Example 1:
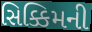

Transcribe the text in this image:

સિક્કિમની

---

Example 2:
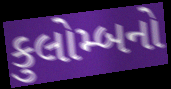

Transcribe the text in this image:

કુલોમ્બનો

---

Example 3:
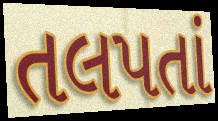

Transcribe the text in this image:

તલપતાં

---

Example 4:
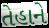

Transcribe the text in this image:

તેહાને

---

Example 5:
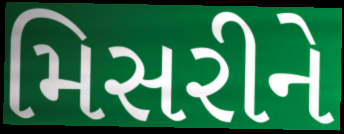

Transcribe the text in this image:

મિસરીને